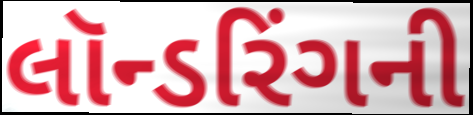
લૉન્ડરિંગની